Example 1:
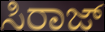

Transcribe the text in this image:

ಸಿರಾಜ್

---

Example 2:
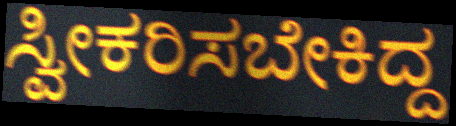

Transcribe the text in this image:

ಸ್ವೀಕರಿಸಬೇಕಿದ್ದ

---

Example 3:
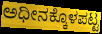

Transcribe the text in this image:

ಅಧೀನಕ್ಕೊಳಪಟ್ಟ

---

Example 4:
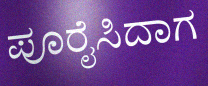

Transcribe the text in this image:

ಪೂರೈಸಿದಾಗ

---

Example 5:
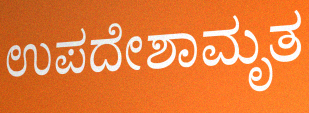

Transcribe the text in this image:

ಉಪದೇಶಾಮೃತ